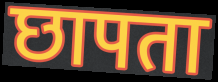
छापता